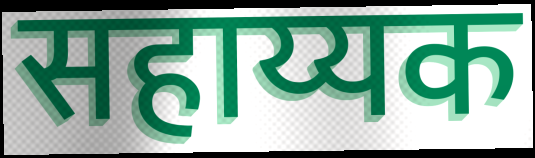
सहाय्यक